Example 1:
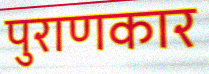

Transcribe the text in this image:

पुराणकार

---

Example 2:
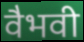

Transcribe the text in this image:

वैभवी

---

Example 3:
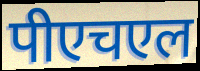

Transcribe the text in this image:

पीएचएल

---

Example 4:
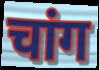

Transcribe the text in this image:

चांग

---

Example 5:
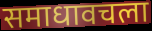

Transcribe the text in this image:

समाधावचला